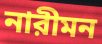
নারীমন